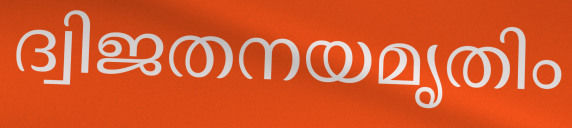
ദ്വിജതനയമൃതിം